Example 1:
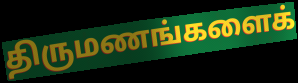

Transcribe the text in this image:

திருமணங்களைக்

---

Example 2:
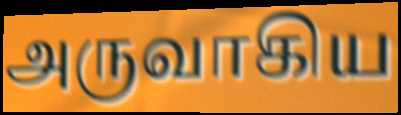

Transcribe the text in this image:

அருவாகிய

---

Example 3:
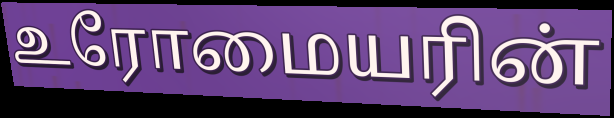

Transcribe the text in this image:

உரோமையரின்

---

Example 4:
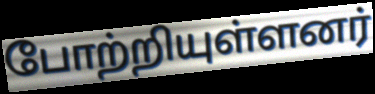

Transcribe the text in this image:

போற்றியுள்ளனர்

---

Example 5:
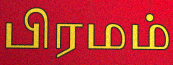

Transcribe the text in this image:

பிரமம்